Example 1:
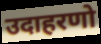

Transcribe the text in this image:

उदाहरणो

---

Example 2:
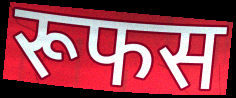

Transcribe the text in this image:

रूफस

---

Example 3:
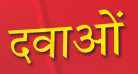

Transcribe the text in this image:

दवाओं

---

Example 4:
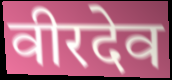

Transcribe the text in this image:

वीरदेव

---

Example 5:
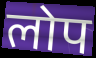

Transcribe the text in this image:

लोप